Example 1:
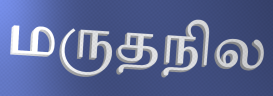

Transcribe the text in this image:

மருதநில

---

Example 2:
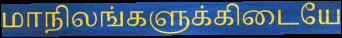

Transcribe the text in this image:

மாநிலங்களுக்கிடையே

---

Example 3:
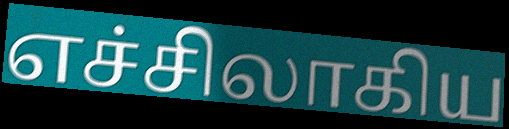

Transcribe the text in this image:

எச்சிலாகிய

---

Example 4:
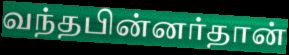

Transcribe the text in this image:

வந்தபின்னர்தான்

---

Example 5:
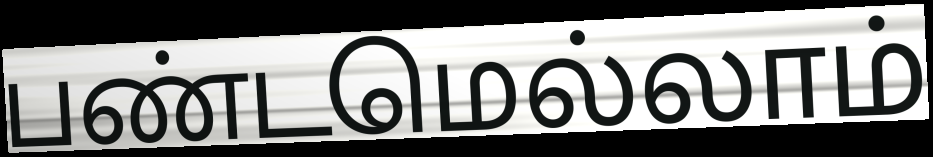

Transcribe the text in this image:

பண்டமெல்லாம்